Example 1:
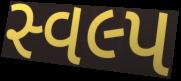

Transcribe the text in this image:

સ્વલ્પ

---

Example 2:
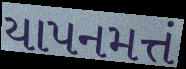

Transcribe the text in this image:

યાપનમત્તં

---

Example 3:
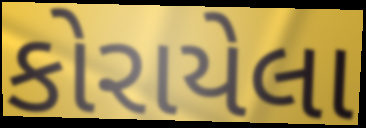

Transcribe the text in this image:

કોરાયેલા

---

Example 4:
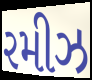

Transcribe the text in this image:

રમીઝ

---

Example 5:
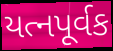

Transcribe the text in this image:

યત્નપૂર્વક